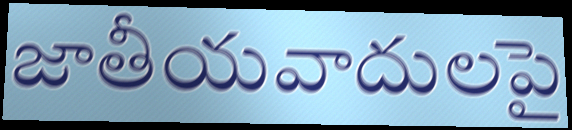
జాతీయవాదులపై